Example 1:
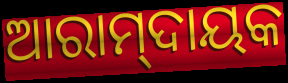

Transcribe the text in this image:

ଆରାମ୍‌ଦାୟକ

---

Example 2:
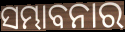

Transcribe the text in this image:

ସମ୍ଭାବନାର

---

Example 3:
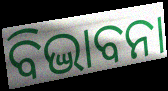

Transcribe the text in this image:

ବିଦ୍ଭାବନା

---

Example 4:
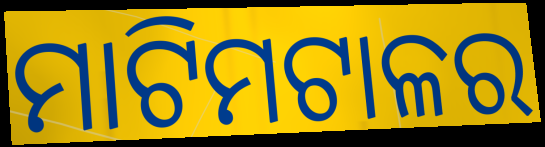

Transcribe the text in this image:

ମାଟିମଟାଳର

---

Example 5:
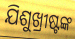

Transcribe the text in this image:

ଯିଶୁଖ୍ରୀଷ୍ଟଙ୍କ